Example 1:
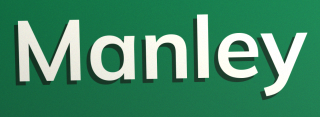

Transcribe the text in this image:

Manley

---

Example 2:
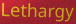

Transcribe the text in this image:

Lethargy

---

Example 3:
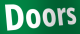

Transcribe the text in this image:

Doors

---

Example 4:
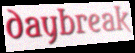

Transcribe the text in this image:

daybreak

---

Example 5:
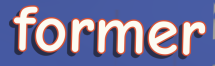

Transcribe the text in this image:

former